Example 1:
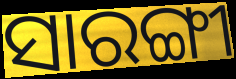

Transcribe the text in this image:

ସାରଙ୍ଗୀ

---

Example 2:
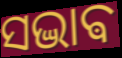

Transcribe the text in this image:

ସଦ୍ଭାଵ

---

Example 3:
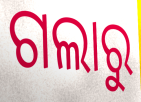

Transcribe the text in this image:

ଗଲାରୁ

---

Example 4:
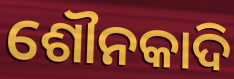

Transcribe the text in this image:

ଶୌନକାଦି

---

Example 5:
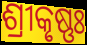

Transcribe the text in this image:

ଶ୍ରୀକୃଷ୍ଣଃ